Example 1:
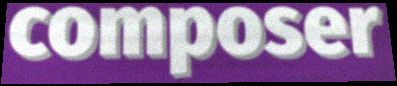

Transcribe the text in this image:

composer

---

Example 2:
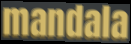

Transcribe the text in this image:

mandala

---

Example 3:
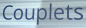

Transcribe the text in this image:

Couplets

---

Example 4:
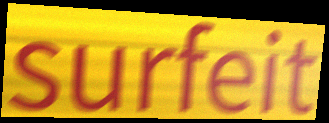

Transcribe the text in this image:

surfeit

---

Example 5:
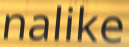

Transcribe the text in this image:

nalike